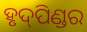
ହୃଦ୍‌ପିଣ୍ଡର